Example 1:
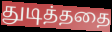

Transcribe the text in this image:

துடித்ததை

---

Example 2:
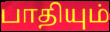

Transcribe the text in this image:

பாதியும்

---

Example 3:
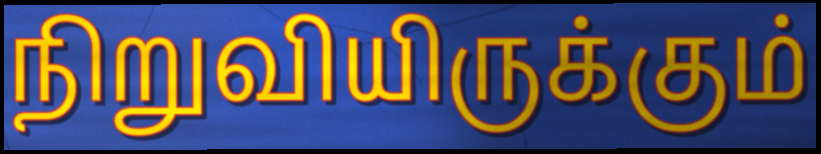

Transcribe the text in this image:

நிறுவியிருக்கும்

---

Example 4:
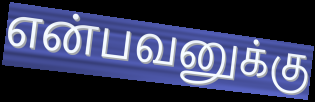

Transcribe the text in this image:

என்பவனுக்கு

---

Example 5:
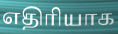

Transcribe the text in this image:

எதிரியாக